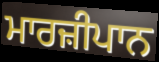
ਮਾਰਜ਼ੀਪਾਨ